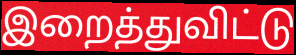
இறைத்துவிட்டு